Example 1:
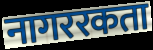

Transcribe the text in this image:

नागररकता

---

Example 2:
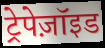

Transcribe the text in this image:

ट्रेपेज़ॉइड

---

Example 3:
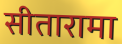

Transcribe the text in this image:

सीतारामा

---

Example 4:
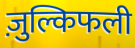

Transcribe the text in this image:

ज़ुल्किफली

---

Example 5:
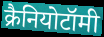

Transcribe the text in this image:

क्रैनियोटॉमी